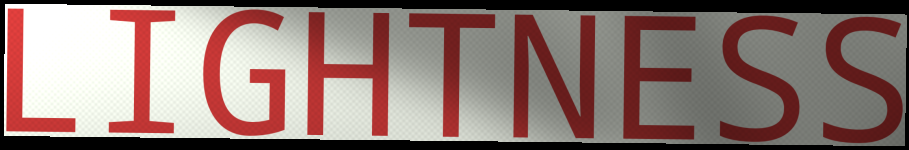
LIGHTNESS